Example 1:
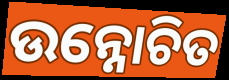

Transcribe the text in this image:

ଉନ୍ନୋଚିତ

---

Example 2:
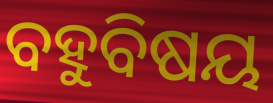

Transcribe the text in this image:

ବହୁବିଷୟ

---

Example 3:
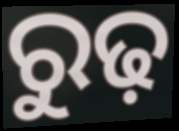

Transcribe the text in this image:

ରୁଢ଼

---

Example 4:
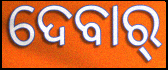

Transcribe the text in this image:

ଦେବାର୍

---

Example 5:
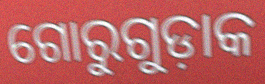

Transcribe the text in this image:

ଗୋରୁଗୁଡ଼ାକ